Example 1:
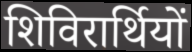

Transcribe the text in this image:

शिविरार्थियों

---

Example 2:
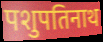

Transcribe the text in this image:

पशुपतिनाथ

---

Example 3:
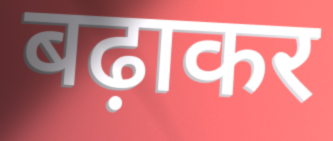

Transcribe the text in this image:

बढ़ाकर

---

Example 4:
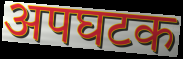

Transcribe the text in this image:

अपघटक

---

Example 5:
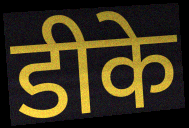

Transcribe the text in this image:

डीके